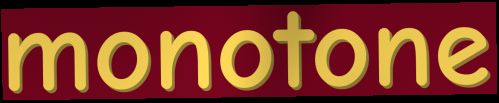
monotone